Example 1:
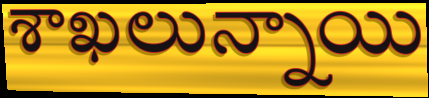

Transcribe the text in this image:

శాఖలున్నాయి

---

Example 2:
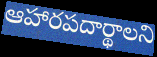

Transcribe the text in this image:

ఆహారపదార్థాలని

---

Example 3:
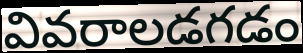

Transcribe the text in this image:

వివరాలడగడం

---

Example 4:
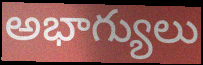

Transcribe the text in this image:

అభాగ్యులు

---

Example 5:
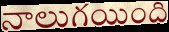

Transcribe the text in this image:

నాలుగయింది